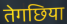
तेगछिया